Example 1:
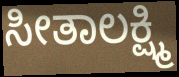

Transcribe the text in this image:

ಸೀತಾಲಕ್ಷ್ಮಿ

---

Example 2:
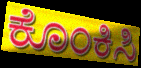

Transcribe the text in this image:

ಕೊಂಕಿಸಿ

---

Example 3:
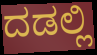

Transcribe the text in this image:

ದಡಲ್ಲಿ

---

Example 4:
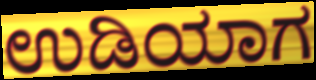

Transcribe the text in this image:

ಉಡಿಯಾಗ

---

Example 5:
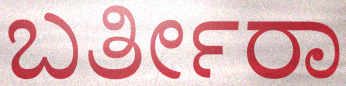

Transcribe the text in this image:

ಬರ್ತೀರಾ